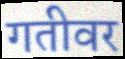
गतीवर